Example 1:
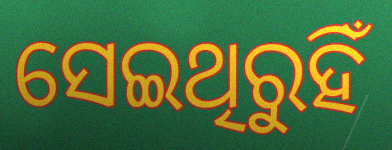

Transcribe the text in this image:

ସେଇଥିରୁହିଁ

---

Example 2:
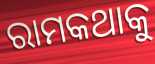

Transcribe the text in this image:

ରାମକଥାକୁ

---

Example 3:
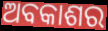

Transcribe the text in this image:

ଅବକାଶର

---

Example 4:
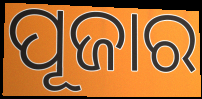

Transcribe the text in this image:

ପୂଜାର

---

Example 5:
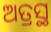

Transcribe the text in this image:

ଅତ୍ରସ୍ଥ